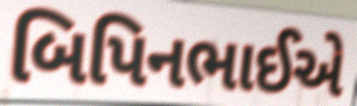
બિપિનભાઈએ